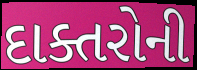
દાક્તરોની